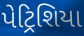
પેટ્રિશિયા